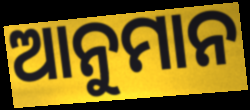
ଆନୁମାନ